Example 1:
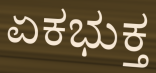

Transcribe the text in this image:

ಏಕಭುಕ್ತ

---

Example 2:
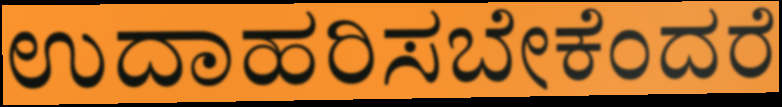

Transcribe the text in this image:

ಉದಾಹರಿಸಬೇಕೆಂದರೆ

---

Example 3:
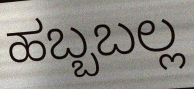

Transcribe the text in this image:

ಹಬ್ಬಬಲ್ಲ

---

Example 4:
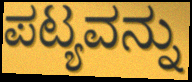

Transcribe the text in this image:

ಪಟ್ಯವನ್ನು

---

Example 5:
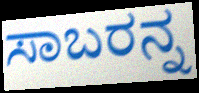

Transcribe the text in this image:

ಸಾಬರನ್ನ